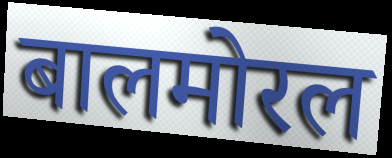
बालमोरल